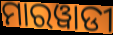
ମାରୱାଡୀ